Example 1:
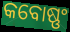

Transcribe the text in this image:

କବୋଷ୍ଣଂ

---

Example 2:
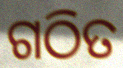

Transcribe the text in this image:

ଗଠିତ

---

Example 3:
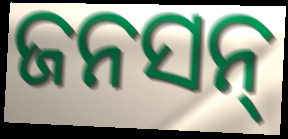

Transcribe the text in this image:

ଜନସନ୍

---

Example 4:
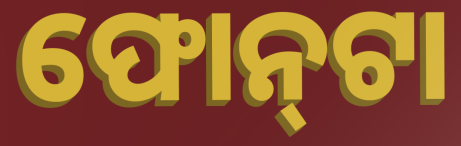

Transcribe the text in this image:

ଫୋନ୍‍ଟା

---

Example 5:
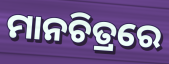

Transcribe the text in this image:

ମାନଚିତ୍ରରେ